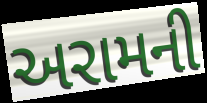
અરામની